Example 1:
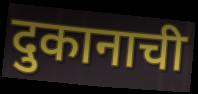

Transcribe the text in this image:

दुकानाची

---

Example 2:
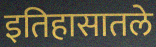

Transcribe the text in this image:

इतिहासातले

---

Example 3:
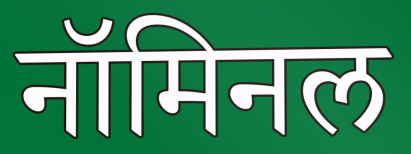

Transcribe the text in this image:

नॉमिनल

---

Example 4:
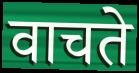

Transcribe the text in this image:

वाचते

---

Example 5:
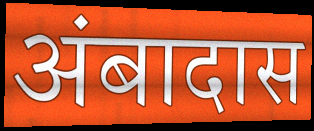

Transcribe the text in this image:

अंबादास